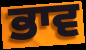
ਭਾਵ